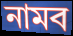
নামব